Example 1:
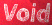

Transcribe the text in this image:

Void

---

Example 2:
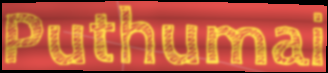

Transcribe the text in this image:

Puthumai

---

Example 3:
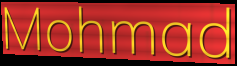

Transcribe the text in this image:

Mohmad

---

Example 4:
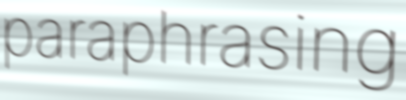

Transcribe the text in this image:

paraphrasing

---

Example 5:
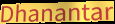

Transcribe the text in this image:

Dhanantar